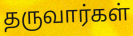
தருவார்கள்